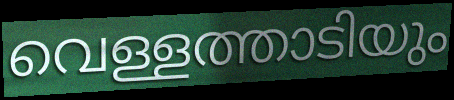
വെള്ളത്താടിയും